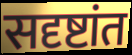
सदृष्टांत